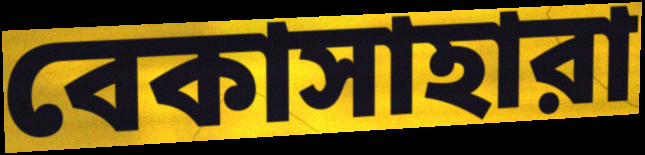
বেকাসাহারা